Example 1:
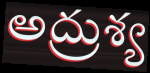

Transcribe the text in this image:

అద్రుశ్య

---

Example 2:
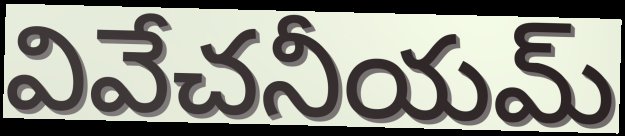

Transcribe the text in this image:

వివేచనీయమ్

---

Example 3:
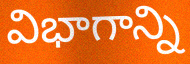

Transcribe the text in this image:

విభాగాన్ని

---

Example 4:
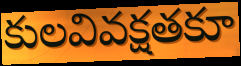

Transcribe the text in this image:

కులవివక్షతకూ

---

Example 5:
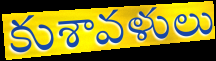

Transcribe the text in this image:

కుశావళులు